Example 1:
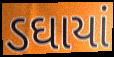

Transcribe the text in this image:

ડઘાયાં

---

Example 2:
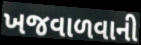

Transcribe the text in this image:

ખજવાળવાની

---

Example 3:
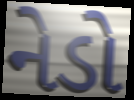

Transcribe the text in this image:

નેડો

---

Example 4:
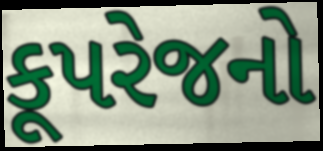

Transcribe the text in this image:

કૂપરેજનો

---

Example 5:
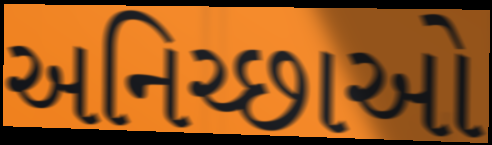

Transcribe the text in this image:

અનિચ્છાઓ